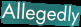
Allegedly